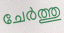
ചേർത്തു